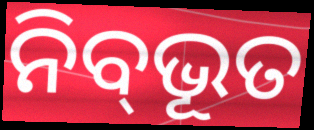
ନିବ୍‌ଭୂତ